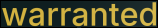
warranted